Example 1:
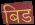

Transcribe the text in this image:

बिड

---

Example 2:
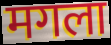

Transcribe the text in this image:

मगला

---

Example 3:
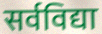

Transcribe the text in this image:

सर्वविद्या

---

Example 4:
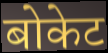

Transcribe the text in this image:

बोकेट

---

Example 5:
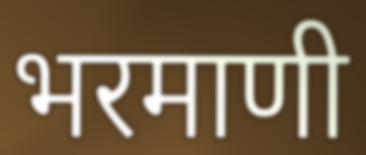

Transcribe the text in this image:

भरमाणी